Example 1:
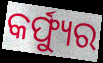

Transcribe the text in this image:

କର୍ଫ୍ୟୁର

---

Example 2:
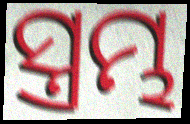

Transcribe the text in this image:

ସ୍ତ୍ରମ୍ଭ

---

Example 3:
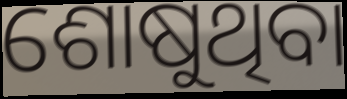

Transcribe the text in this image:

ଶୋଷୁଥିବା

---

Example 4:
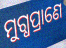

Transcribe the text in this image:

ମୁଗ୍ଧପ୍ରାଣେ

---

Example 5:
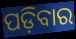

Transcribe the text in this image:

ପଡ଼ିବାର